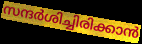
സന്ദർശിച്ചിരിക്കാൻ